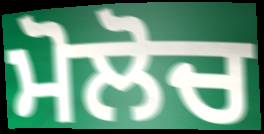
ਮੋਲੋਚ